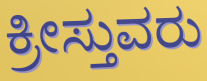
ಕ್ರೀಸ್ತುವರು